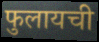
फुलायची